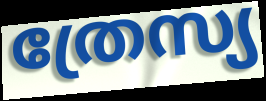
ത്രേസ്യ